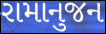
રામાનુજન